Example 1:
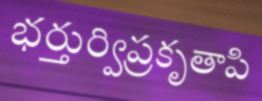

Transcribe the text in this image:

భర్తుర్విప్రకృతాపి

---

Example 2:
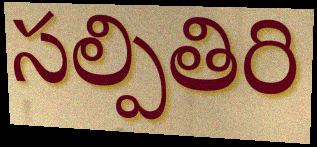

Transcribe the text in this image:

సల్పితిరి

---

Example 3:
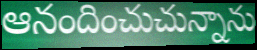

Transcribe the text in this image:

ఆనందించుచున్నాను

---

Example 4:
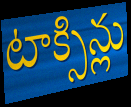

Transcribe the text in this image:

టాక్సిన్లు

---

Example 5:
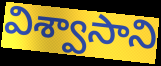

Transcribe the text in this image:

విశ్వాసాని